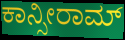
ಕಾನ್ಸೀರಾಮ್